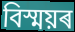
বিস্ময়ৰ